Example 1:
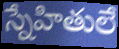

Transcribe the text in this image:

స్నేహితులే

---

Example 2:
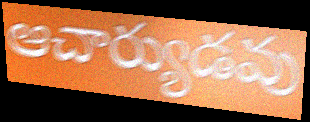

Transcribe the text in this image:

ఆచార్యుడవు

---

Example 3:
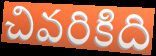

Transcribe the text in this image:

చివరికిది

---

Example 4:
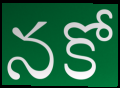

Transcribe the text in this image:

నకో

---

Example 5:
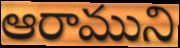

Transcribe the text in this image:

ఆరాముని